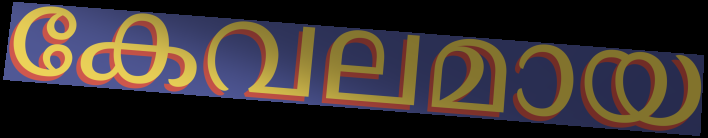
കേവലമായ